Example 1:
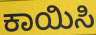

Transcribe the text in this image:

ಕಾಯಿಸಿ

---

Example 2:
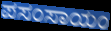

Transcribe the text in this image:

ಪಸಂಸಾಯಂ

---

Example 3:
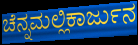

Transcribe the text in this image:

ಚೆನ್ನಮಲ್ಲಿಕಾರ್ಜುನ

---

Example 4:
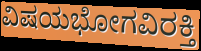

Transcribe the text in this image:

ವಿಷಯಭೋಗವಿರಕ್ತಿ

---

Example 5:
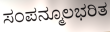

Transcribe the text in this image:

ಸಂಪನ್ಮೂಲಭರಿತ